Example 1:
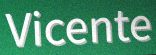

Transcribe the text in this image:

Vicente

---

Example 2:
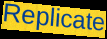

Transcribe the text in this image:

Replicate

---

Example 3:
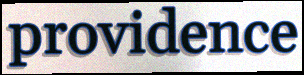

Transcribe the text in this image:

providence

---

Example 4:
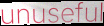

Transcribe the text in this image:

unuseful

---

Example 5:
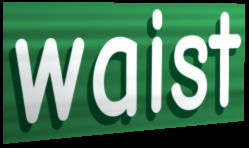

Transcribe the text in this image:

waist